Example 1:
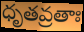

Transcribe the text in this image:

ధృతవ్రతాః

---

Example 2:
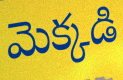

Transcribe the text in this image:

మెక్కడి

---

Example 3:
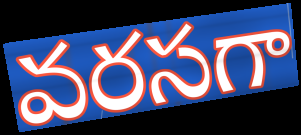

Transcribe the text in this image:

వరసగా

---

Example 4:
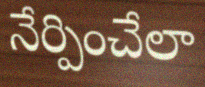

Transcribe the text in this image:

నేర్పించేలా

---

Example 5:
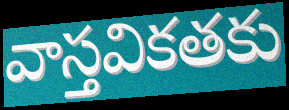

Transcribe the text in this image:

వాస్తవికతకు